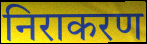
निराकरण